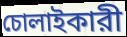
চোলাইকারী